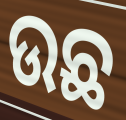
ଉଛ